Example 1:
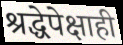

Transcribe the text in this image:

श्रद्धेपेक्षाही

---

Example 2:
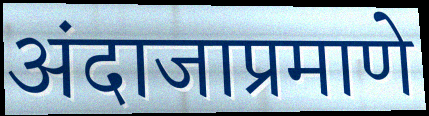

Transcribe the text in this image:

अंदाजाप्रमाणे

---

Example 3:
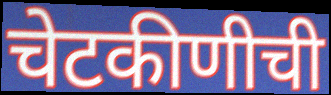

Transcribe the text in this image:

चेटकीणीची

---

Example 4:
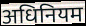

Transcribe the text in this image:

अधिनियम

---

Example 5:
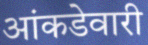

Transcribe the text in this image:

आंकडेवारी